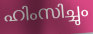
ഹിംസിച്ചും